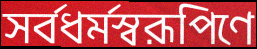
সর্বধর্মস্বরূপিণে